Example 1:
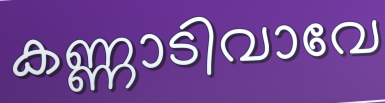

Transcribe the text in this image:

കണ്ണാടിവാവേ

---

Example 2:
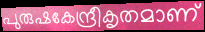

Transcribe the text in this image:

പുരുഷകേന്ദ്രീകൃതമാണ്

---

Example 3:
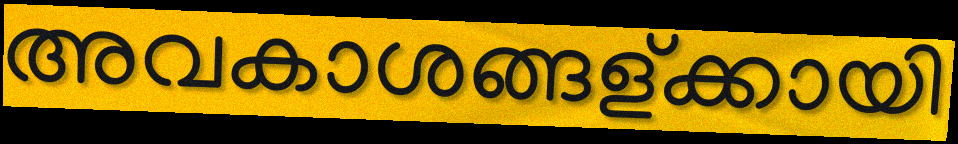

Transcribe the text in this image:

അവകാശങ്ങള്ക്കായി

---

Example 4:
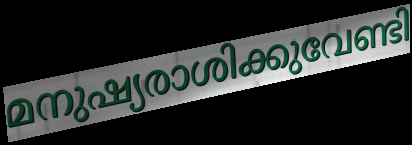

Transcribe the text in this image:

മനുഷ്യരാശിക്കുവേണ്ടി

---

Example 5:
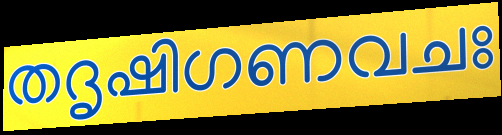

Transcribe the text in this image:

തദൃഷിഗണവചഃ